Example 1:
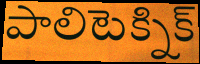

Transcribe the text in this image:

పాలిటెక్నిక్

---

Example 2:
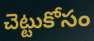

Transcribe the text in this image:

చెట్టుకోసం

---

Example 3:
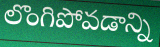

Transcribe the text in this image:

లొంగిపోవడాన్ని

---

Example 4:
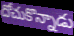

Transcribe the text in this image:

దోచుకొన్నాడు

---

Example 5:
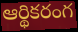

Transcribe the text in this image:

ఆర్థికరంగ